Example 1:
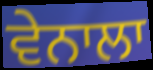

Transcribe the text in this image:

ਵੇਨਾਲਾ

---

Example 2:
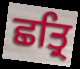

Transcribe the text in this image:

ਛਤ੍ਰਿ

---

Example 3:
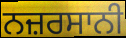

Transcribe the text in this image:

ਨਜ਼ਰਸਾਨੀ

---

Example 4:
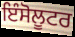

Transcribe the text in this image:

ਇੰਸੋਲੂਟਰ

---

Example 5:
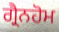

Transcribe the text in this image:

ਗ੍ਰੈਨਹੋਮ